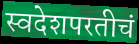
स्वदेशपरतीचं